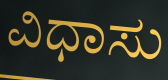
ವಿಧಾಸು